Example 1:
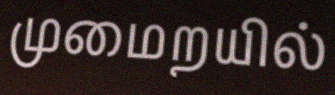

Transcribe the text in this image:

முமைறயில்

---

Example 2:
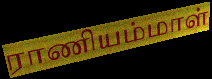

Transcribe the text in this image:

ராணியம்மாள்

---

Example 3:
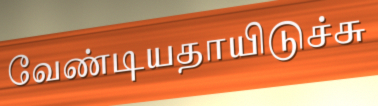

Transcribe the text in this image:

வேண்டியதாயிடுச்சு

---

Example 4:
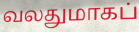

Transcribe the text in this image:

வலதுமாகப்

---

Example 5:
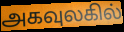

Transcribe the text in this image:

அகவுலகில்